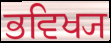
ਭਵਿਖ੍ਯ